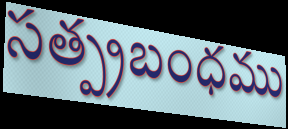
సత్ప్రబంధము